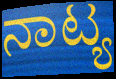
ನಾಟ್ಯ